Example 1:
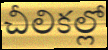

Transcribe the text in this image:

చీలికల్లో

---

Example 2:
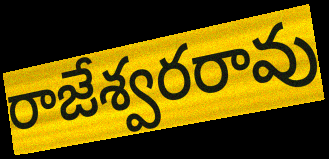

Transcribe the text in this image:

రాజేశ్వరరావు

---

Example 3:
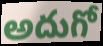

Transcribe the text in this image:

అదుగో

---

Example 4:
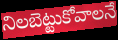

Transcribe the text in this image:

నిలబెట్టుకోవాలనే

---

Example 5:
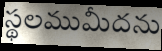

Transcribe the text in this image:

స్థలముమీదను